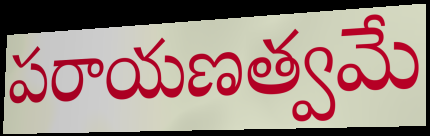
పరాయణత్వమే